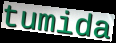
tumida